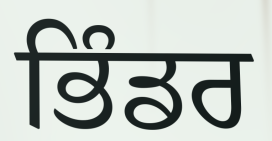
ਭਿੰਡਰ